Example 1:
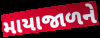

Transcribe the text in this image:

માયાજાળને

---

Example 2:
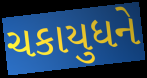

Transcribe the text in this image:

ચકાયુધને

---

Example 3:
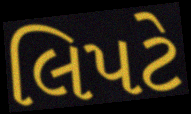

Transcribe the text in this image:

લિપટે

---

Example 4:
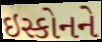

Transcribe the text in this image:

ઇસ્કોનને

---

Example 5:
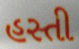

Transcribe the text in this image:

હસ્તી